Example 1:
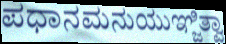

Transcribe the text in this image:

ಪಧಾನಮನುಯುಞ್ಜಿತ್ವಾ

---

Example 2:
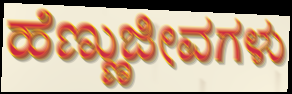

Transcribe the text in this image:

ಹೆಣ್ಣುಜೀವಗಳು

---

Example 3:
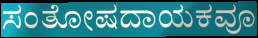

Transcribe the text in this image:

ಸಂತೋಷದಾಯಕವೂ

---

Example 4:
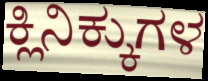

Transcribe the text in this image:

ಕ್ಲಿನಿಕ್ಕುಗಳ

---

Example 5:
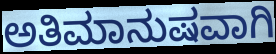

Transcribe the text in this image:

ಅತಿಮಾನುಷವಾಗಿ